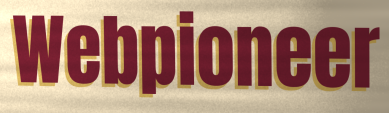
Webpioneer